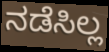
ನಡೆಸಿಲ್ಲ